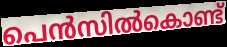
പെൻസിൽകൊണ്ട്